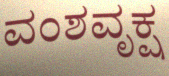
ವಂಶವೃಕ್ಷ